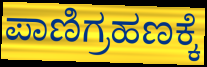
ಪಾಣಿಗ್ರಹಣಕ್ಕೆ